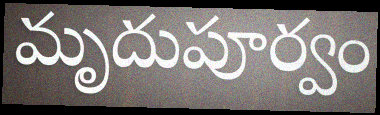
మృదుపూర్వం